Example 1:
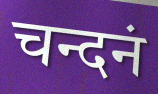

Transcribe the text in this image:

चन्दनं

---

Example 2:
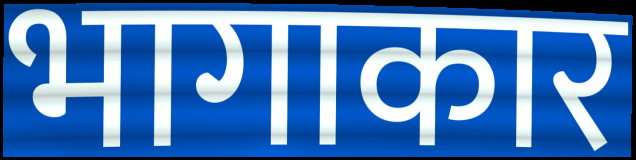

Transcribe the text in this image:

भागाकार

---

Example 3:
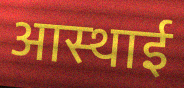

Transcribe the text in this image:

आस्थाई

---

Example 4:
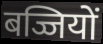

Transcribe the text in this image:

बज्जियों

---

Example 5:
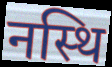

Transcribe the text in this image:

नस्थि